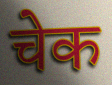
चेक